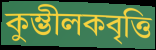
কুম্ভীলকবৃত্তি